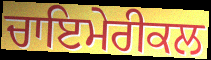
ਚਾਇਮੇਰੀਕਲ